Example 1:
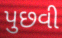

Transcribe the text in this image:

પુછવી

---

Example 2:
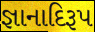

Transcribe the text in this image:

જ્ઞાનાદિરૂપ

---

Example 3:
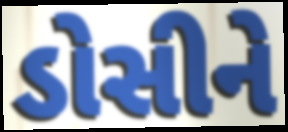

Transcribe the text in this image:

ડોસીને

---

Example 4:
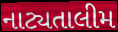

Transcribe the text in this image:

નાટ્યતાલીમ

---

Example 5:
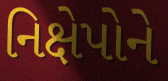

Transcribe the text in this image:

નિક્ષેપોને